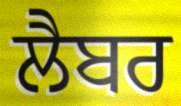
ਲੈਬਰ